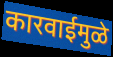
कारवाईमुळे